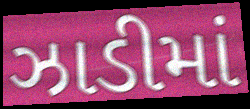
ઝાડીમાં